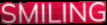
SMILING